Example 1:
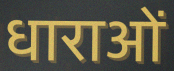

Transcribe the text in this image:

धाराओं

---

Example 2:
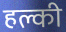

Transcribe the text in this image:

हल्की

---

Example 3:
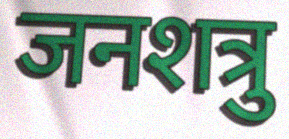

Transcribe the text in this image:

जनशत्रु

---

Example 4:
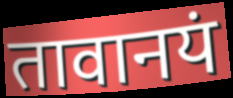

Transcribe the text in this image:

तावानयं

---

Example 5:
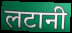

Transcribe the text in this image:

लटानी